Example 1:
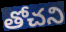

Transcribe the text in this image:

తోచని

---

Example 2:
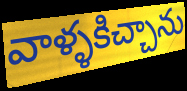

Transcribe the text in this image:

వాళ్ళకిచ్చాను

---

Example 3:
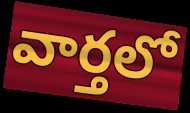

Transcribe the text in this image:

వార్తలో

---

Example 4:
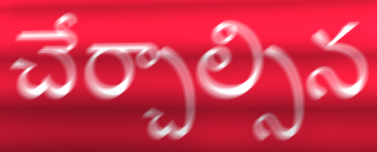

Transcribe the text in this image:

చేర్చాల్సిన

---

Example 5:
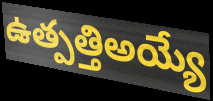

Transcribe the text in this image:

ఉత్పత్తిఅయ్యే